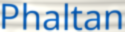
Phaltan